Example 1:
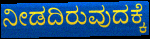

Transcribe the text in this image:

ನೀಡದಿರುವುದಕ್ಕೆ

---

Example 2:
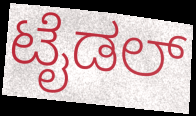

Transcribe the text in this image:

ಟೈಡಲ್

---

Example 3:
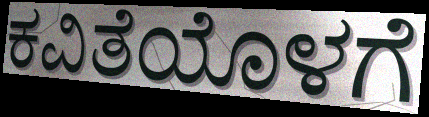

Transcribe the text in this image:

ಕವಿತೆಯೊಳಗೆ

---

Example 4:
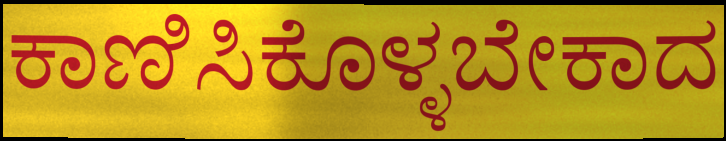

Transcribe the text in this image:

ಕಾಣಿಸಿಕೊಳ್ಳಬೇಕಾದ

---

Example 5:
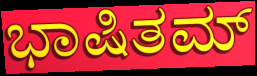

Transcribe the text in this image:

ಭಾಷಿತಮ್